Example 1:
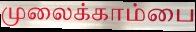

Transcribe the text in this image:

முலைக்காம்பை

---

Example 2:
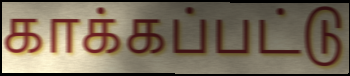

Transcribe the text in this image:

காக்கப்பட்டு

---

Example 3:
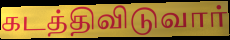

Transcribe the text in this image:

கடத்திவிடுவார்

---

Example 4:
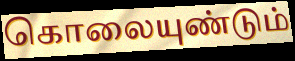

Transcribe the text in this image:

கொலையுண்டும்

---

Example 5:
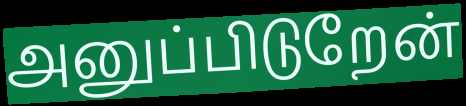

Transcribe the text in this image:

அனுப்பிடுறேன்